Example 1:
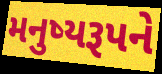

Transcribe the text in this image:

મનુષ્યરૂપને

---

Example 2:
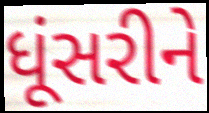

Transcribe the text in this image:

ધૂંસરીને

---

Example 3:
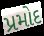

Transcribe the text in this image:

પ્રમોદ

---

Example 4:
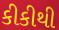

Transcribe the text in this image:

કીકીથી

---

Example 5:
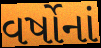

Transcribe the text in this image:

વર્ષોનાં